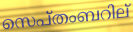
സെപ്തംബറില്